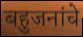
बहुजनांचे